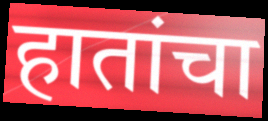
हातांचा